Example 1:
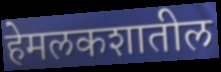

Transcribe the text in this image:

हेमलकशातील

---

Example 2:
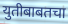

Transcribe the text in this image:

युतीबाबतचा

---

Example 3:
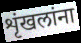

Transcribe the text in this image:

शृंखलांना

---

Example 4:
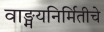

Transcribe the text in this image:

वाङ्मयनिर्मितीचे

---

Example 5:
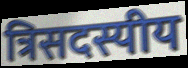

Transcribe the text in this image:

त्रिसदस्यीय